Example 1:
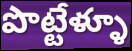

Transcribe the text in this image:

పొట్టేళ్ళూ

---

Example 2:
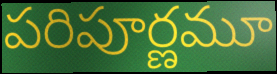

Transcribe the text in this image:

పరిపూర్ణమూ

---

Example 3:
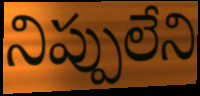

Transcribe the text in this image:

నిప్పులేని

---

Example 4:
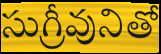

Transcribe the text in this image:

సుగ్రీవునితో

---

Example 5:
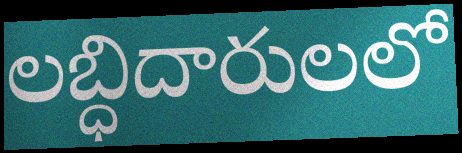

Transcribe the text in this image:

లబ్ధిదారులలో